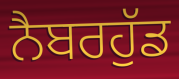
ਨੈਬਰਹੁੱਡ